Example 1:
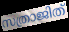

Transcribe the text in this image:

സത്രാജിത്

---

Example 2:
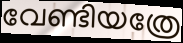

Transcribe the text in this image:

വേണ്ടിയത്രേ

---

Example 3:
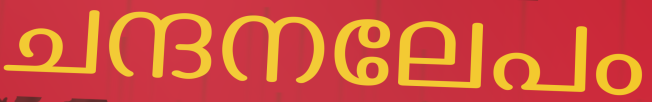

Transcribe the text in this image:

ചന്ദനലേപം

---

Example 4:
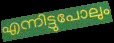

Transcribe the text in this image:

എന്നിട്ടുപോലും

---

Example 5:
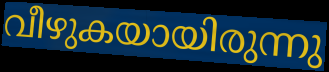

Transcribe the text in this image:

വീഴുകയായിരുന്നു